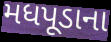
મધપૂડાના